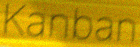
Kanban